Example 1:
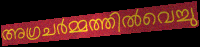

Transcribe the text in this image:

അഗ്രചർമ്മത്തിൽവെച്ചു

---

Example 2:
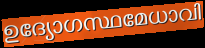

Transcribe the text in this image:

ഉദ്യോഗസ്ഥമേധാവി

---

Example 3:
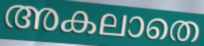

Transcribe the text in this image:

അകലാതെ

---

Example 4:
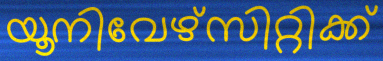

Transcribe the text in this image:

യൂനിവേഴ്സിറ്റിക്ക്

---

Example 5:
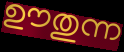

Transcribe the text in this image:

ഊതുന്ന